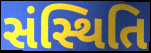
સંસ્થિતિ